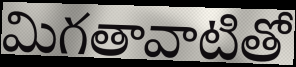
మిగతావాటితో